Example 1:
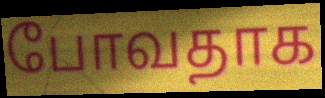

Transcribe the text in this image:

போவதாக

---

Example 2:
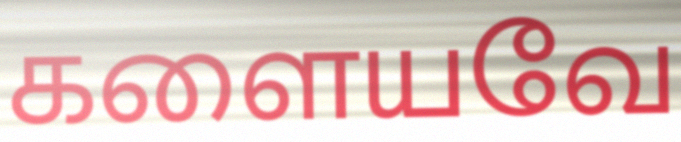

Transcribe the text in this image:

களையவே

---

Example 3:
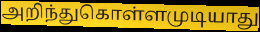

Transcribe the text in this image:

அறிந்துகொள்ளமுடியாது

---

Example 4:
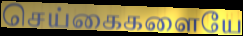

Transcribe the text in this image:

செய்கைகளையே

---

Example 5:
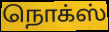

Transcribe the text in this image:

நொக்ஸ்